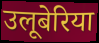
उलूबेरिया